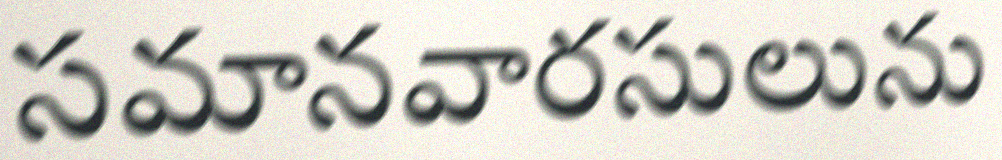
సమానవారసులును